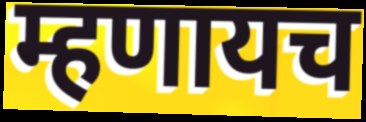
म्हणायच